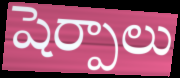
షెర్పాలు